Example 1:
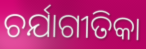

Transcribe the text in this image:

ଚର୍ଯାଗୀତିକା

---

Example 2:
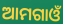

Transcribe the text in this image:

ଆମଗାଓଁ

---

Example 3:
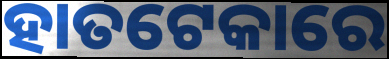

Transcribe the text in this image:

ହାତଟେକାରେ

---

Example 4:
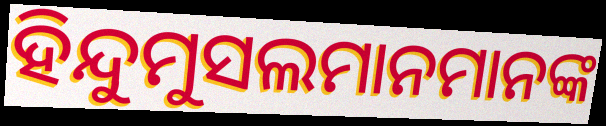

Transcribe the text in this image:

ହିନ୍ଦୁମୁସଲମାନମାନଙ୍କ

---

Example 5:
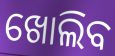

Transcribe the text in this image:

ଖୋଲିବ